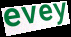
evey